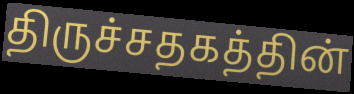
திருச்சதகத்தின்